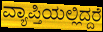
ವ್ಯಾಪ್ತಿಯಲ್ಲಿದ್ದರೆ